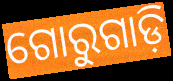
ଗୋରୁଗାଡ଼ି